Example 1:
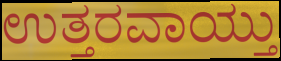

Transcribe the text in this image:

ಉತ್ತರವಾಯ್ತು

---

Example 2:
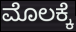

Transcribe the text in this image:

ಮೊಲಕ್ಕೆ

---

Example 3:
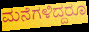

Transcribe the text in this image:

ಮನೆಗಳಿದ್ದರೂ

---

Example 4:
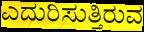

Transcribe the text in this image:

ಎದುರಿಸುತ್ತಿರುವ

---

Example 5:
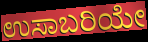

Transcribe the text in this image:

ಉಸಾಬರಿಯೇ